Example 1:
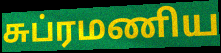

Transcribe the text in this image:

சுப்ரமணிய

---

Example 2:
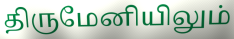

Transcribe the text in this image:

திருமேனியிலும்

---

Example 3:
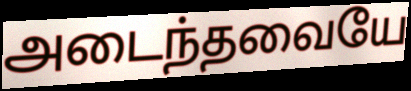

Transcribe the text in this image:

அடைந்தவையே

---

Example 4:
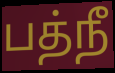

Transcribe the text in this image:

பத்நீ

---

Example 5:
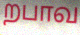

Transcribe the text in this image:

றபாவ